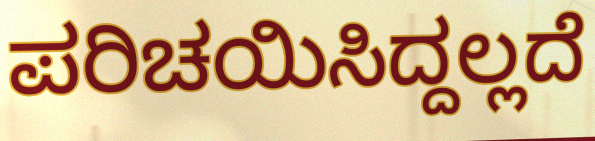
ಪರಿಚಯಿಸಿದ್ದಲ್ಲದೆ